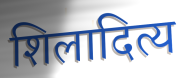
शिलादित्य